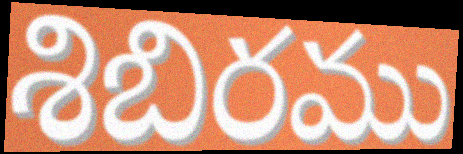
శిబిరము